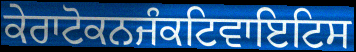
ਕੇਰਾਟੋਕਨਜੰਕਟਿਵਾਇਟਿਸ